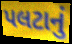
પલટાનું